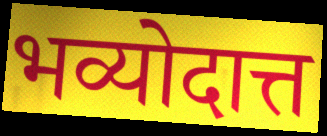
भव्योदात्त